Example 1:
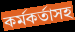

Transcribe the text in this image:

কর্মকর্তাসহ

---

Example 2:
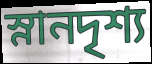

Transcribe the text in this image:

স্নানদৃশ্য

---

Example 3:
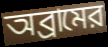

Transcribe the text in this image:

অব্রামের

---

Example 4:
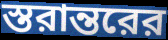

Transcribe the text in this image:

স্তরান্তরের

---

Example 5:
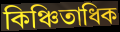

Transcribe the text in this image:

কিঞ্চিতাধিক